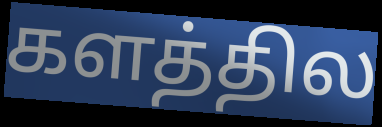
களத்தில